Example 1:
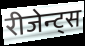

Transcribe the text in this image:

रीजेन्ट्स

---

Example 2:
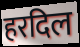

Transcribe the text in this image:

हरदिल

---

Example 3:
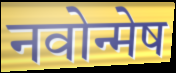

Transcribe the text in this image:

नवोन्‍मेष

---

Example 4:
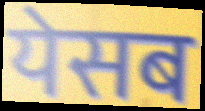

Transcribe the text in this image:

येसब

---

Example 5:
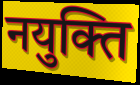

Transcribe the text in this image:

नयुक्ति